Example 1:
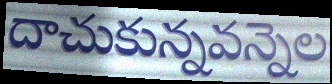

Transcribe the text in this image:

దాచుకున్నవన్నెల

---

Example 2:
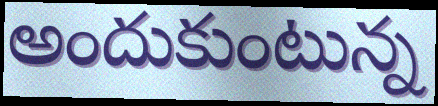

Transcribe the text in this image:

అందుకుంటున్న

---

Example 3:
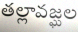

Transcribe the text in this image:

తల్లావజ్ఘల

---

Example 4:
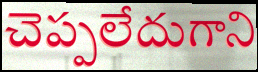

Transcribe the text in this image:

చెప్పలేదుగాని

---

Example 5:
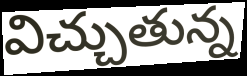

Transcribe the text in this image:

విచ్చుతున్న